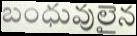
బంధువులైన